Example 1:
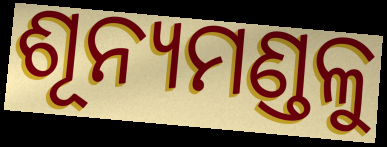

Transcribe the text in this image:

ଶୂନ୍ୟମଣ୍ଡଳୁ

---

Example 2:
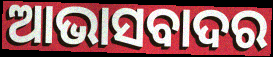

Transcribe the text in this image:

ଆଭାସବାଦର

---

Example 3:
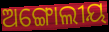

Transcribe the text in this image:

ଅଙ୍ଗୋଲୀୟ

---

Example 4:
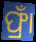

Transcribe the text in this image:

ଫ୍ରାଁ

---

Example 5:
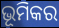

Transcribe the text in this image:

ଭୂମିକର